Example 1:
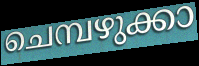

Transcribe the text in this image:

ചെമ്പഴുക്കാ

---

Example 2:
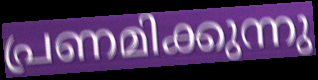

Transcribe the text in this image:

പ്രണമിക്കുന്നു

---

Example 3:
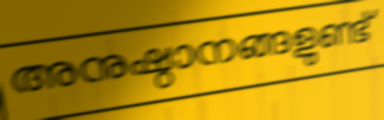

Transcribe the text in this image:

അനുഷ്ഠാനങ്ങളുണ്ട്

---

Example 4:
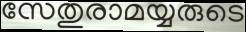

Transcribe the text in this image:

സേതുരാമയ്യരുടെ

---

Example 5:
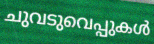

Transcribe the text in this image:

ചുവടുവെപ്പുകൾ